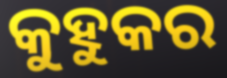
କୁହୁକର